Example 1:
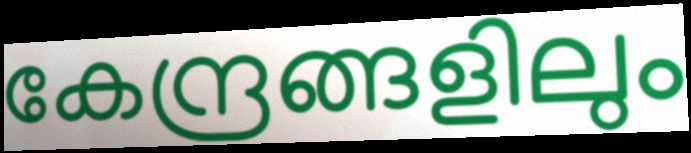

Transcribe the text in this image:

കേന്ദ്രങ്ങളിലും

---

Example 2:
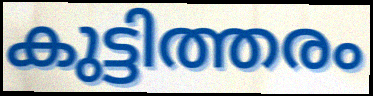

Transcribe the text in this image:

കുട്ടിത്തരം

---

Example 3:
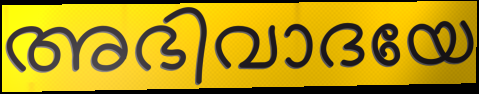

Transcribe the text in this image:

അഭിവാദയേ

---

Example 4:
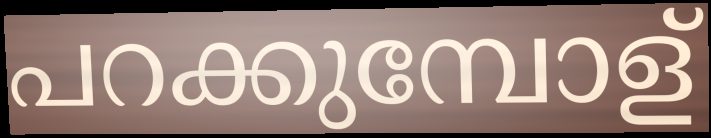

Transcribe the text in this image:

പറക്കുമ്പോള്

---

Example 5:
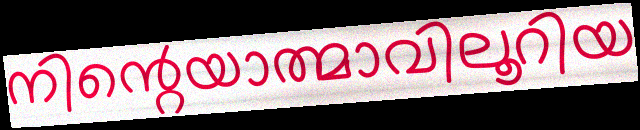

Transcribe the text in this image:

നിന്റെയാത്മാവിലൂറിയ